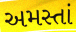
અમસ્તાં